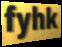
fyhk